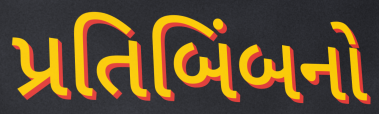
પ્રતિબિંબનો